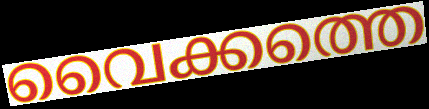
വൈക്കത്തെ